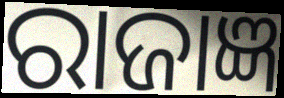
ରାଜାଜ୍ଞ